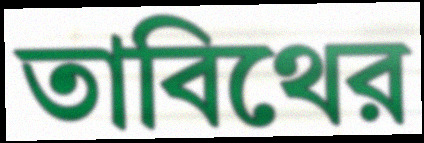
তাবিথের